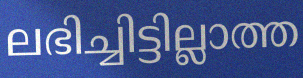
ലഭിച്ചിട്ടില്ലാത്ത